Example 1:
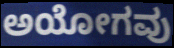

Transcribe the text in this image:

ಅಯೋಗವು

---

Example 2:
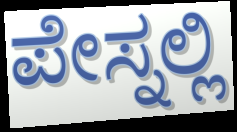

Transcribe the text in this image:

ಪೇಸ್ನಲ್ಲಿ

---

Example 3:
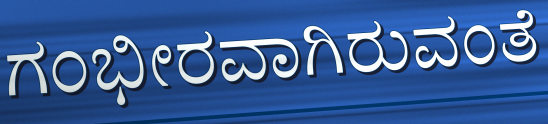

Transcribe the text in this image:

ಗಂಭೀರವಾಗಿರುವಂತೆ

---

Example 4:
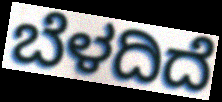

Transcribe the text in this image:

ಬೆಳದಿದೆ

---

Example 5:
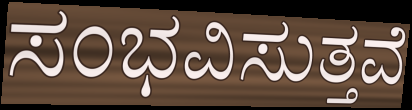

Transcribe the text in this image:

ಸಂಭವಿಸುತ್ತವೆ